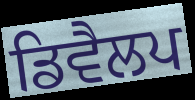
ਡਿਵੈਲਪ